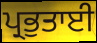
ਪ੍ਰਭੁਤਾਈ